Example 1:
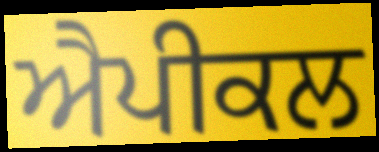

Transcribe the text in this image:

ਐਪੀਕਲ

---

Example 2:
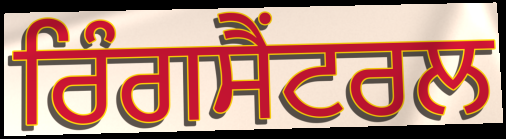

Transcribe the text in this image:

ਰਿੰਗਸੈਂਟਰਲ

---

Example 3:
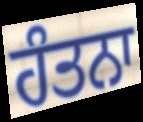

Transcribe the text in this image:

ਹੰਤਨਾ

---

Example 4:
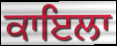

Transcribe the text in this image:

ਕਾਇਲਾ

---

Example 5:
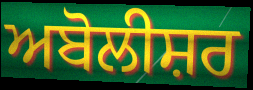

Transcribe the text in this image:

ਅਬੋਲੀਸ਼ਰ